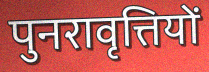
पुनरावृत्तियों